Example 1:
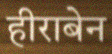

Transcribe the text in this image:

हीराबेन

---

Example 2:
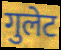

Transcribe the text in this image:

गुलेट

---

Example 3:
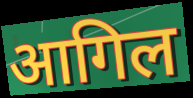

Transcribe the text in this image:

आगिल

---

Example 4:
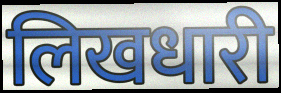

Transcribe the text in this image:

लिखधारी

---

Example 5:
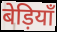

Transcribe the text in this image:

बेड़ियाँ